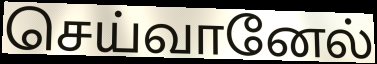
செய்வானேல்